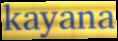
kayana